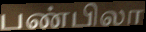
பண்பிலா